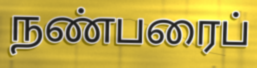
நண்பரைப்